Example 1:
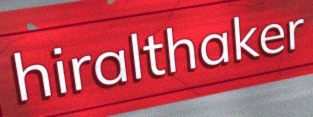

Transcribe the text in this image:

hiralthaker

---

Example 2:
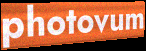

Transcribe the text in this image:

photovum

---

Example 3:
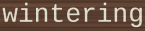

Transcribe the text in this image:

wintering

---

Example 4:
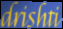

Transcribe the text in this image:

drishti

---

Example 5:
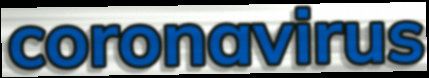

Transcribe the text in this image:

coronavirus